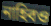
নাহিবও